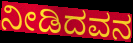
ನೀಡಿದವನ